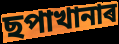
ছপাখানাৰ